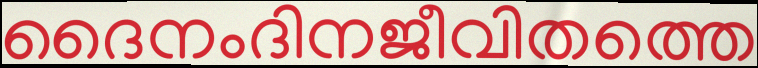
ദൈനംദിനജീവിതത്തെ